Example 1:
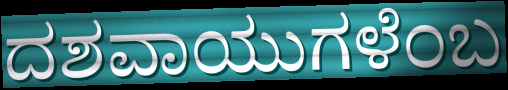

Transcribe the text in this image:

ದಶವಾಯುಗಳೆಂಬ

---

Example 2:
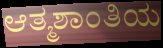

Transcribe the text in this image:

ಆತ್ಮಶಾಂತಿಯ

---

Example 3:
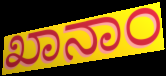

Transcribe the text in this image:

ಖಾನಾಂ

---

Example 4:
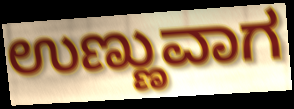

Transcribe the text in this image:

ಉಣ್ಣುವಾಗ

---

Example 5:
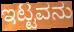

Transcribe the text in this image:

ಇಟ್ಟವನು